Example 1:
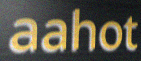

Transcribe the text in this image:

aahot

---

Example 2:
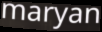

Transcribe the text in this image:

maryan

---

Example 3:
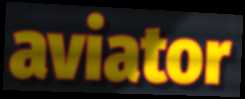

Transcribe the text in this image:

aviator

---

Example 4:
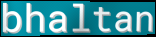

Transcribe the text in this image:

bhaltan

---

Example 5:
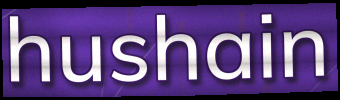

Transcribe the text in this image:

hushain